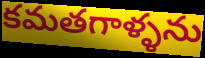
కమతగాళ్ళను